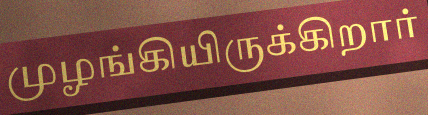
முழங்கியிருக்கிறார்